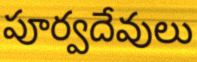
పూర్వదేవులు